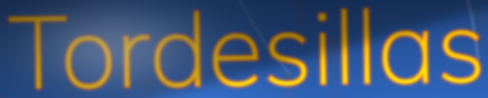
Tordesillas